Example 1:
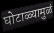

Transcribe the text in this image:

घोटाळ्यामुळं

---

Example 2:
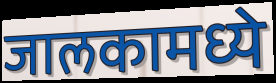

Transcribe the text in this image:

जालकामध्ये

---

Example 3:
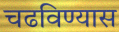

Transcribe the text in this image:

चढविण्यास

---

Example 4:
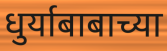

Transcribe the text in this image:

धुर्याबाबाच्या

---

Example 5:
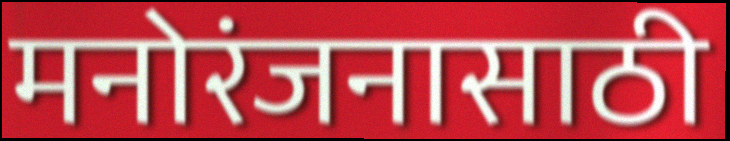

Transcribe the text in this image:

मनोरंजनासाठी